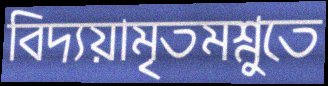
বিদ্যয়ামৃতমশ্নুতে